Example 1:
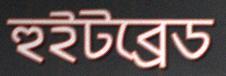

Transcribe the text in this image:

হুইটব্রেড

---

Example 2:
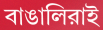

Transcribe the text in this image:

বাঙালিরাই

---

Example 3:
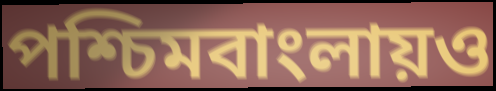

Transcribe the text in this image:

পশ্চিমবাংলায়ও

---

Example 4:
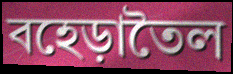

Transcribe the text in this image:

বহেড়াতৈল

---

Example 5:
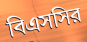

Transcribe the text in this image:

বিএসসির